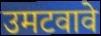
उमटवावे